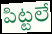
పిట్టలే